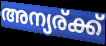
അന്യര്ക്ക്